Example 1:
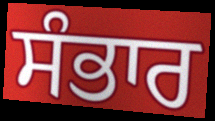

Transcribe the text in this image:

ਸੰਭਾਰ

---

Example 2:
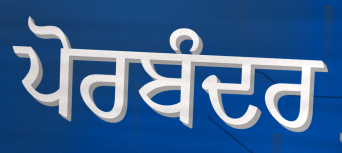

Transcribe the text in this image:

ਪੋਰਬੰਦਰ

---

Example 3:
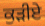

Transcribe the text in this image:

ਕੁੜੀਏ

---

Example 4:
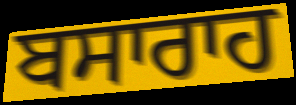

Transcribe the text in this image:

ਬਸਾਰਾਹ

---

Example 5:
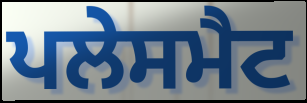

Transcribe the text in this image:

ਪਲੇਸਮੈਟ